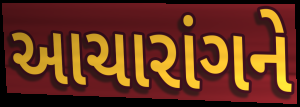
આચારાંગને